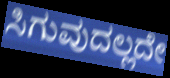
ಸಿಗುವುದಲ್ಲದೇ